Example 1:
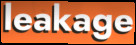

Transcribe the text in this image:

leakage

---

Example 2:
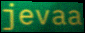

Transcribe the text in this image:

jevaa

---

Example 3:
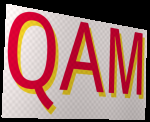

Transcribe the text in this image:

QAM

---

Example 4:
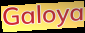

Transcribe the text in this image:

Galoya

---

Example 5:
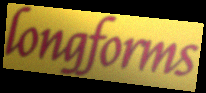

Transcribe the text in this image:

longforms